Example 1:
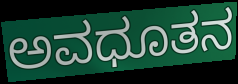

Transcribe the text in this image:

ಅವಧೂತನ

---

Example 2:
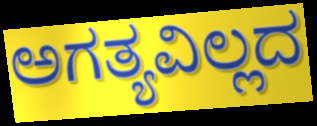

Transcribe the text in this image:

ಅಗತ್ಯವಿಲ್ಲದ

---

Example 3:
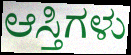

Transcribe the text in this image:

ಆಸ್ತಿಗಳು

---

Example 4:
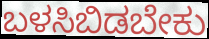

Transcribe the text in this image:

ಬಳಸಿಬಿಡಬೇಕು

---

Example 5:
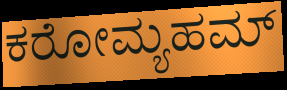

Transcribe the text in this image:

ಕರೋಮ್ಯಹಮ್